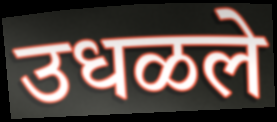
उधळले